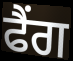
ਫੈਂਗ